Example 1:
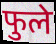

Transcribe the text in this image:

फुले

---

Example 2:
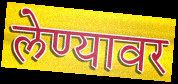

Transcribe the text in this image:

लेण्यावर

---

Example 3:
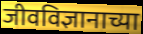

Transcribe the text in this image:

जीवविज्ञानाच्या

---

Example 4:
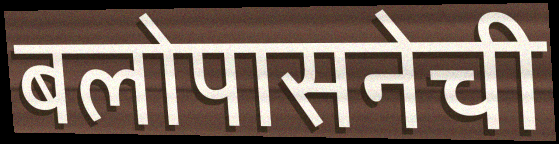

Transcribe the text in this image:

बलोपासनेची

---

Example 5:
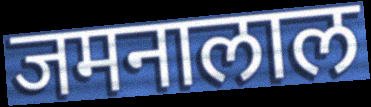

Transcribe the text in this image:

जमनालाल